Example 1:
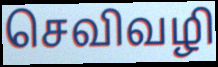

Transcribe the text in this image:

செவிவழி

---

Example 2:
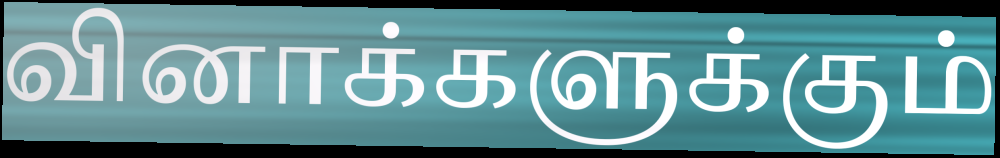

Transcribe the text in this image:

வினாக்களுக்கும்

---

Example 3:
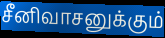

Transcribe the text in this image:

சீனிவாசனுக்கும்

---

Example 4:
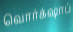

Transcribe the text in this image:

வொர்க்‌ஷாப்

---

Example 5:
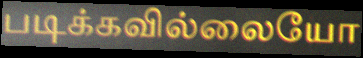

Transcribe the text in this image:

படிக்கவில்லையோ